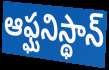
ఆఫ్ఘనిస్థాన్